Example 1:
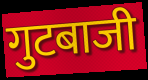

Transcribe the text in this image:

गुटबाजी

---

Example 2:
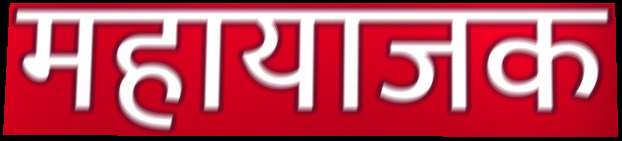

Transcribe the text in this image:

महायाजक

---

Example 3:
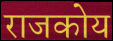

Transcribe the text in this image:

राजकोय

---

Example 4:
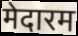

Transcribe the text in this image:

मेदारम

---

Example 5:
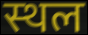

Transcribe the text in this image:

स्थल